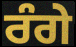
ਰੰਗੇ